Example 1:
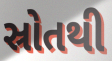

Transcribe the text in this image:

સ્રોતથી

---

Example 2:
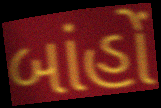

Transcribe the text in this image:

બાંહોં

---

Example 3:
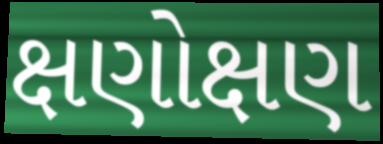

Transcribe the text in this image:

ક્ષણોક્ષણ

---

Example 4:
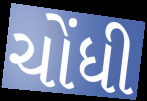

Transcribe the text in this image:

ચોંધી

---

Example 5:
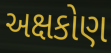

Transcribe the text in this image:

અક્ષકોણ